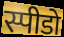
स्पीडो